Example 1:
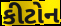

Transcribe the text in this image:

કીટોન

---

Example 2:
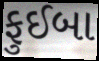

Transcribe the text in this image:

ફુઈબા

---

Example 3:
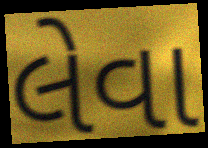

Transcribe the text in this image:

લેવા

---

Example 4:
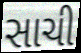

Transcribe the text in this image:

સાચી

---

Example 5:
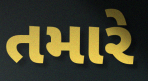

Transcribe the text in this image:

તમારે